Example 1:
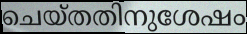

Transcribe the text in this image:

ചെയ്തതിനുശേഷം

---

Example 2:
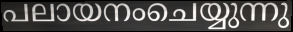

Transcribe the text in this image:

പലായനംചെയ്യുന്നു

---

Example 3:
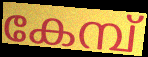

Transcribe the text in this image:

കേമ്പ്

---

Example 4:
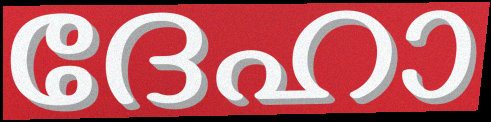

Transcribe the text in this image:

ദേഹാ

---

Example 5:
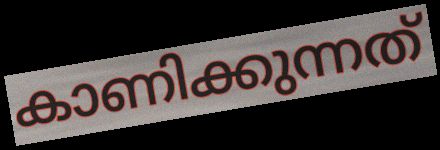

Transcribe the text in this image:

കാണിക്കുന്നത്